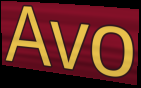
Avo